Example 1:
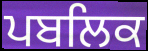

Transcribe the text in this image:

ਪਬਲਿਕ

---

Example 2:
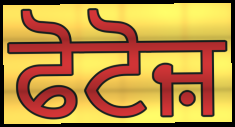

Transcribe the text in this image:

ਫੋਟੋਜ਼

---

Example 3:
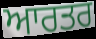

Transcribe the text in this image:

ਆਰਤਰ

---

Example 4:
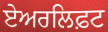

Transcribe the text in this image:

ਏਅਰਲਿਫ਼ਟ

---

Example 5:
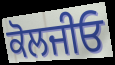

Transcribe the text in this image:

ਕੋਲਜੀਓ